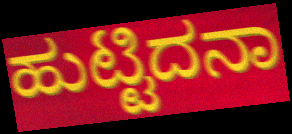
ಹುಟ್ಟಿದನಾ